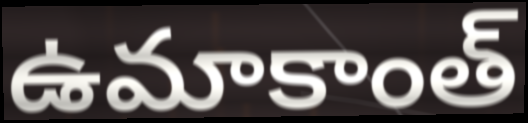
ఉమాకాంత్